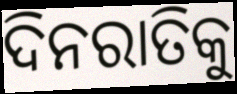
ଦିନରାତିକୁ